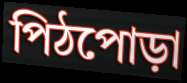
পিঠপোড়া